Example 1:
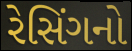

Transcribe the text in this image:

રેસિંગનો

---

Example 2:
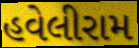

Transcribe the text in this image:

હવેલીરામ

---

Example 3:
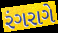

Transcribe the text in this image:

રંગરાગે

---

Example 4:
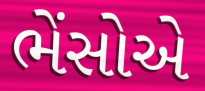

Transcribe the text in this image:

ભેંસોએ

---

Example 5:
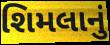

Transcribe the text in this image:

શિમલાનું